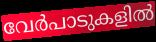
വേർപാടുകളിൽ